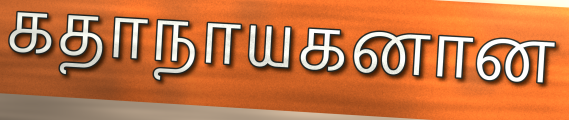
கதாநாயகனான